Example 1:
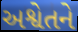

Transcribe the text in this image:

અશ્વેતને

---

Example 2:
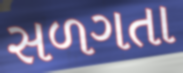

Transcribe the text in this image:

સળગતા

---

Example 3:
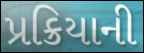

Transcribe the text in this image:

પ્રક્રિયાની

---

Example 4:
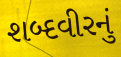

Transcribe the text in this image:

શબ્દવીરનું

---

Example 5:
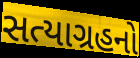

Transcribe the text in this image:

સત્યાગ્રહનો